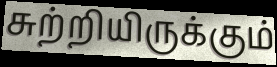
சுற்றியிருக்கும்